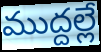
ముద్దల్లే